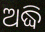
ଅଦ୍ଧି